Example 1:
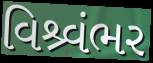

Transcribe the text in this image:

વિશ્ર્વંભર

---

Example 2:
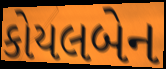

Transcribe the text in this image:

કોયલબેન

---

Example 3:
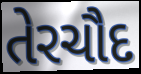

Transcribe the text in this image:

તેરચૌદ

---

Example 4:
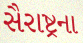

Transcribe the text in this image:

સૈરાષ્ટ્રના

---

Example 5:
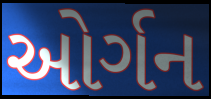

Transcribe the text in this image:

ઓર્ગન